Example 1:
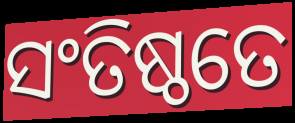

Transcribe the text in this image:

ସଂତିଷ୍ଠତେ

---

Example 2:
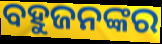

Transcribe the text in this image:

ବହୁଜନଙ୍କର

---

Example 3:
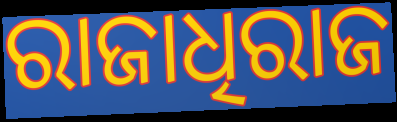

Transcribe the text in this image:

ରାଜାଧିରାଜ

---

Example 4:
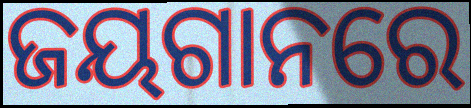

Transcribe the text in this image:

ଜୟଗାନରେ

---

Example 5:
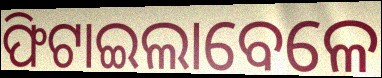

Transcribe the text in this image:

ଫିଟାଇଲାବେଳେ